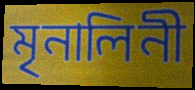
মৃনালিনী